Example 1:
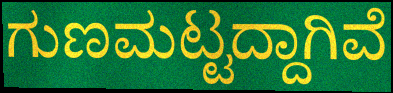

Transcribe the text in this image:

ಗುಣಮಟ್ಟದ್ದಾಗಿವೆ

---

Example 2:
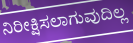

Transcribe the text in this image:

ನಿರೀಕ್ಷಿಸಲಾಗುವುದಿಲ್ಲ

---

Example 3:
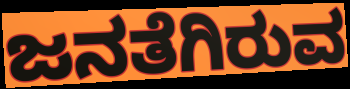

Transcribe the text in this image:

ಜನತೆಗಿರುವ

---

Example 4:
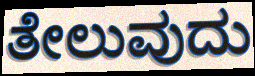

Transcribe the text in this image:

ತೇಲುವುದು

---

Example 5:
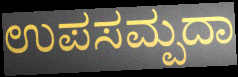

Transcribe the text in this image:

ಉಪಸಮ್ಪದಾ